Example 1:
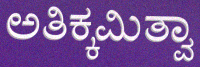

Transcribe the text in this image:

ಅತಿಕ್ಕಮಿತ್ವಾ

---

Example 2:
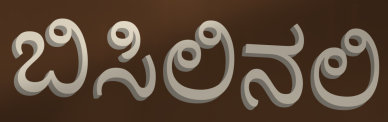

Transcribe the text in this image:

ಬಿಸಿಲಿನಲಿ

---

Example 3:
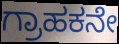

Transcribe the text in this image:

ಗ್ರಾಹಕನೇ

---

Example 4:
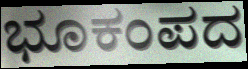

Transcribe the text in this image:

ಭೂಕಂಪದ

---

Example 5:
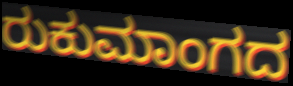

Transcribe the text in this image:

ರುಕುಮಾಂಗದ